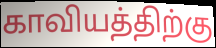
காவியத்திற்கு